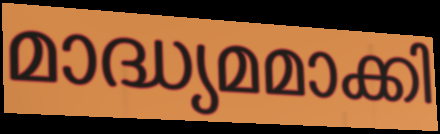
മാദ്ധ്യമമാക്കി